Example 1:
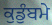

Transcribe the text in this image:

ਕੁਡੁੰਬਮੇ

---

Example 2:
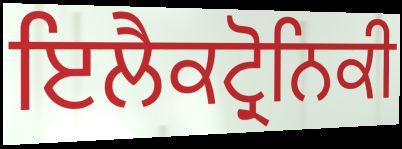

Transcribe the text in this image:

ਇਲੈਕਟ੍ਰੋਨਿਕੀ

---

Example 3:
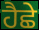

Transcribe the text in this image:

ਹੈਛੇ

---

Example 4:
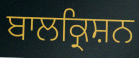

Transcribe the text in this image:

ਬਾਲਕ੍ਰਿਸ਼ਨ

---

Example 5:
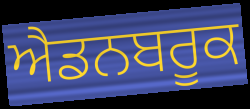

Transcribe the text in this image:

ਐਡਨਬਰੂਕ